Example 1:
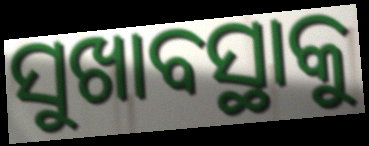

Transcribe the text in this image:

ସୁଖାବସ୍ଥାକୁ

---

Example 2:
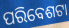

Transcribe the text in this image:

ପରିବେଶଟା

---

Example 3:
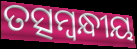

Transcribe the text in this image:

ତତ୍ସମ୍ବନ୍ଧୀୟ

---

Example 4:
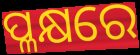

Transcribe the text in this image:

ପ୍ଳକ୍ଷରେ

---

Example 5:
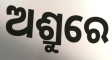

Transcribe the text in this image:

ଅଶ୍ରୁରେ